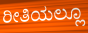
ರೀತಿಯಲ್ಲೂ